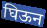
घिऊन